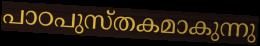
പാഠപുസ്തകമാകുന്നു